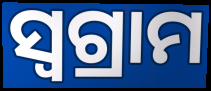
ସ୍ୱଗ୍ରାମ